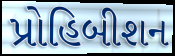
પ્રોહિબીશન